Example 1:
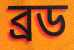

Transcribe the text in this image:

ব্রড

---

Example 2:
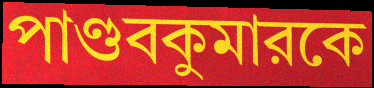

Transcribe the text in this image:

পাণ্ডবকুমারকে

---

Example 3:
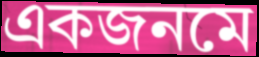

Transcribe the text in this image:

একজনমে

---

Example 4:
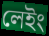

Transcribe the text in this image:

লেইং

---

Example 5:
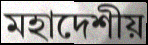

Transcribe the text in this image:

মহাদেশীয়